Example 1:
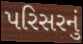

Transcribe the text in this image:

પરિસરનું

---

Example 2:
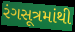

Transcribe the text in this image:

રંગસૂત્રમાંથી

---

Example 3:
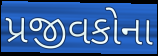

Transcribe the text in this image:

પ્રજીવકોના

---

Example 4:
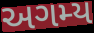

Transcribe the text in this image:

અગમ્ય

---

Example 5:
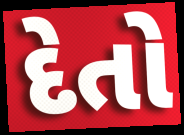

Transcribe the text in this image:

દેતો